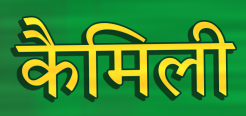
कैमिली